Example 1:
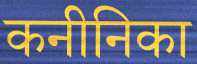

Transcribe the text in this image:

कनीनिका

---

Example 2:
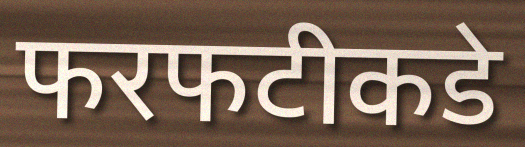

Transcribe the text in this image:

फरफटीकडे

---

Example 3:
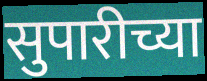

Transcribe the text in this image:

सुपारीच्या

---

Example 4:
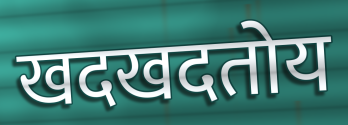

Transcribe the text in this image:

खदखदतोय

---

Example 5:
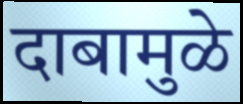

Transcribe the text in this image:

दाबामुळे